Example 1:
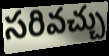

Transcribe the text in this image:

సరివచ్చు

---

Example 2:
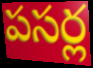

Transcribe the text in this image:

పసర్ల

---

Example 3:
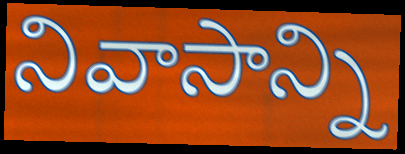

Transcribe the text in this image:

నివాసాన్ని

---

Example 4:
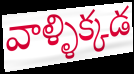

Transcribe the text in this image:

వాళ్ళిక్కడ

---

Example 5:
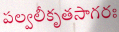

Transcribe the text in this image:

పల్వలీకృతసాగరః